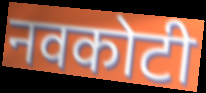
नवकोटी